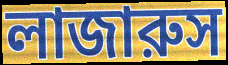
লাজারুস